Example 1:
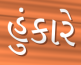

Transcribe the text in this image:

હુંકારે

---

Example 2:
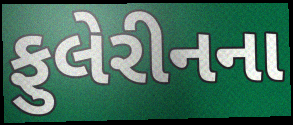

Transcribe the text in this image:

ફુલેરીનના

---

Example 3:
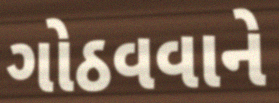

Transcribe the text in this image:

ગોઠવવાને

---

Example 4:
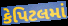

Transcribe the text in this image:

કેપિટલમાં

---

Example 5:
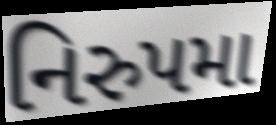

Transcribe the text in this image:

નિરુપમા